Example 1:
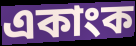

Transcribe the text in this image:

একাংক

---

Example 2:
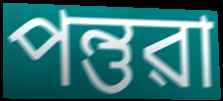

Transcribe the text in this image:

পন্তুৱা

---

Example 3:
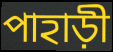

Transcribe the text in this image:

পাহাড়ী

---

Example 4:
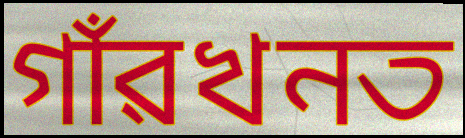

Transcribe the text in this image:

গাঁৱখনত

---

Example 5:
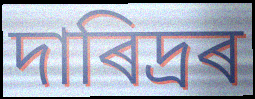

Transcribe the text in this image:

দাৰিদ্ৰৰ